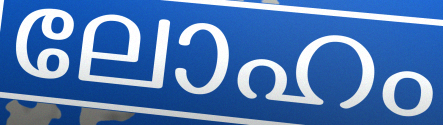
ലോഹം